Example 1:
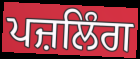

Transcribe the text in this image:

ਪਜ਼ਲਿੰਗ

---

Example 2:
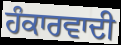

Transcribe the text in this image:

ਹੰਕਾਰਵਾਦੀ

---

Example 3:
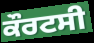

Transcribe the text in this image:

ਕੌਰਟਸੀ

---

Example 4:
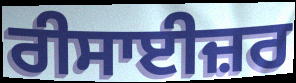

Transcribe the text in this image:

ਰੀਸਾਈਜ਼ਰ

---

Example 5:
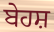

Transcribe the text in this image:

ਬੇਹਸ਼